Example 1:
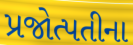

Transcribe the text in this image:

પ્રજોત્પતીના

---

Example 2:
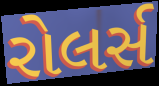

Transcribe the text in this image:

રોલર્સ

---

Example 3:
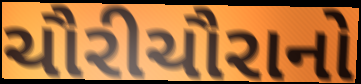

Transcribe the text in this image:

ચૌરીચૌરાનો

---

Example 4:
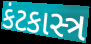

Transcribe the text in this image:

કંટકાસ્ત્ર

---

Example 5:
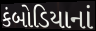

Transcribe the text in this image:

કંબોડિયાનાં